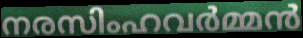
നരസിംഹവർമ്മൻ